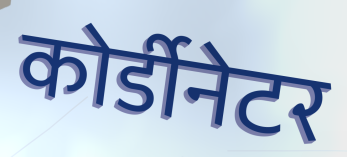
कोर्डीनेटर